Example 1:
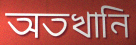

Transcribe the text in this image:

অতখানি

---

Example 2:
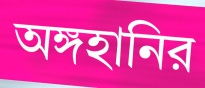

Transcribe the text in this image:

অঙ্গহানির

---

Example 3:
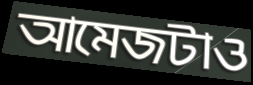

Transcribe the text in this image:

আমেজটাও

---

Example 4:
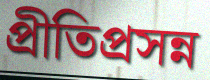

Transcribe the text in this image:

প্রীতিপ্রসন্ন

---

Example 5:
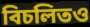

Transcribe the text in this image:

বিচলিতও